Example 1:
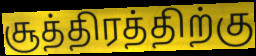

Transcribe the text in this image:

சூத்திரத்திற்கு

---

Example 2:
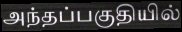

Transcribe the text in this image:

அந்தப்பகுதியில்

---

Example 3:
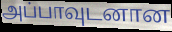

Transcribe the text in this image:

அப்பாவுடனான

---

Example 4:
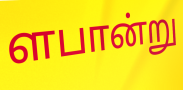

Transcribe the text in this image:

ளபான்று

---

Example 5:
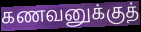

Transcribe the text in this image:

கணவனுக்குத்